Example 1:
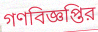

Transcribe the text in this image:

গণবিজ্ঞপ্তির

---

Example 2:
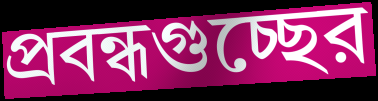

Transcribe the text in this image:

প্রবন্ধগুচ্ছের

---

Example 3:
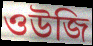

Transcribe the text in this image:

ওউজি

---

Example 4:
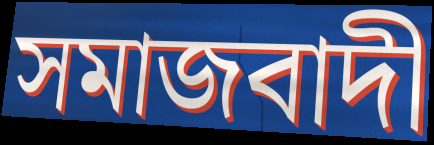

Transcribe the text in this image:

সমাজবাদী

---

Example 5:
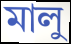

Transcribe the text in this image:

মালু